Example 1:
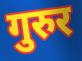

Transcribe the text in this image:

गुरुर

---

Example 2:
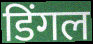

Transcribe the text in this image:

डिंगल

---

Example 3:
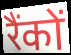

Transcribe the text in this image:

रैंकों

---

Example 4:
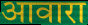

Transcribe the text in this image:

आवारा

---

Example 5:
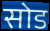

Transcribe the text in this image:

सोड